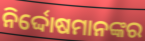
ନିର୍ଦ୍ଦୋଷମାନଙ୍କର